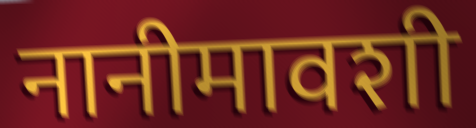
नानीमावशी